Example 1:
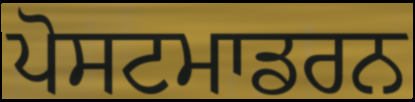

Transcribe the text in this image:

ਪੋਸਟਮਾਡਰਨ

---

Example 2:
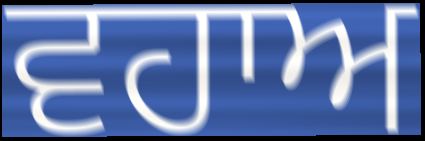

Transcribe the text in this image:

ਵਹਾਅ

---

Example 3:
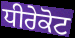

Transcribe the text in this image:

ਧੀਰੇਕੋਟ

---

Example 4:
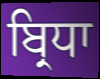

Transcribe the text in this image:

ਬ੍ਰਿਧਾ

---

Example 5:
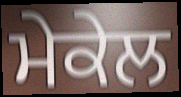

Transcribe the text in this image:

ਮੇਕੇਲ